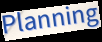
Planning